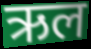
ऋल